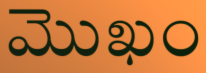
మొఖం